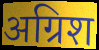
अग्रिश